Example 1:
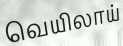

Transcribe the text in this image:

வெயிலாய்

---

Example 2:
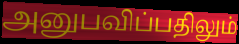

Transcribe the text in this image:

அனுபவிப்பதிலும்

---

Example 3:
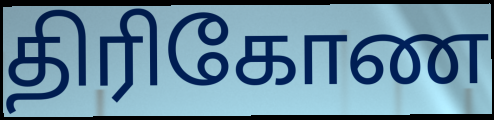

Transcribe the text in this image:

திரிகோண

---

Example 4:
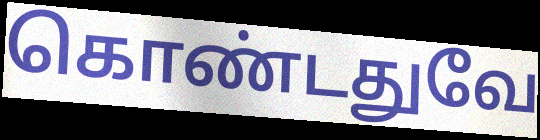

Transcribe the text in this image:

கொண்டதுவே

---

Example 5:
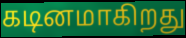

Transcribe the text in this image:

கடினமாகிறது